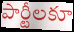
పార్టీలకూ